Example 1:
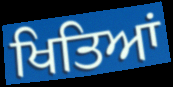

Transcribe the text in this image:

ਖਿਤਿਆਂ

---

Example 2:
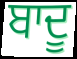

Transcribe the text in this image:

ਬਾਦੂ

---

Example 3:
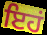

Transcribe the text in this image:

ਇਹਂ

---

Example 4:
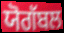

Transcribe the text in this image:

ਯੋਗੱਬਲ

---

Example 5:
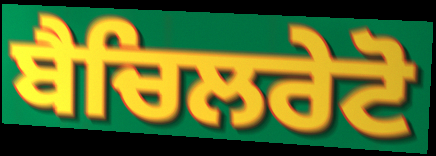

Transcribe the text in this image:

ਬੈਚਿਲਰੇਟੋ